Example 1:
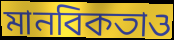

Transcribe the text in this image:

মানবিকতাও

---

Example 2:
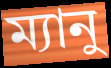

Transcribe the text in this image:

ম্যানু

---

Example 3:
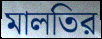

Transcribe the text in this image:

মালতির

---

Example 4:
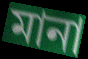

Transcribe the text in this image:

মানা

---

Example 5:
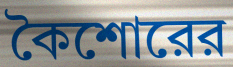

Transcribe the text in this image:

কৈশোরের